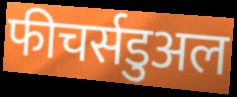
फीचर्सडुअल